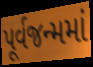
પૂર્વજન્મમાં